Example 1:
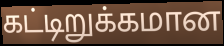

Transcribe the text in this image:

கட்டிறுக்கமான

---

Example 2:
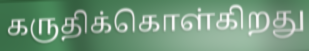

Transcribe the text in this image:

கருதிக்கொள்கிறது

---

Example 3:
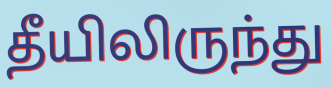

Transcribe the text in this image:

தீயிலிருந்து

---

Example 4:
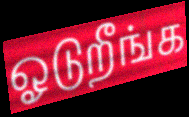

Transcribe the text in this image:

ஓடுறீங்க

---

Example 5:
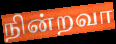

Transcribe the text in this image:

நின்றவா